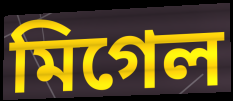
মিগেল